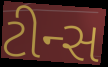
ટીન્સ